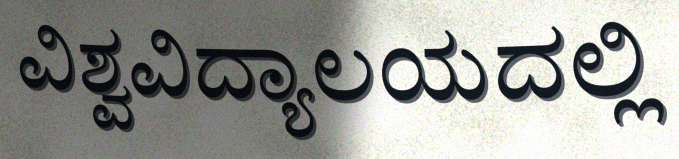
ವಿಶ್ವವಿದ್ಯಾಲಯದಲ್ಲಿ